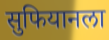
सुफियानला